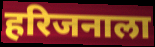
हरिजनाला